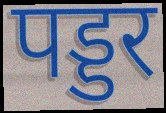
पड्डर